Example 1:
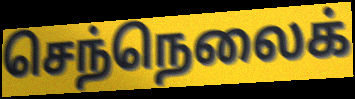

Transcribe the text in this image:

செந்நெலைக்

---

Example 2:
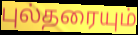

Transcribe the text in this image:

புல்தரையும்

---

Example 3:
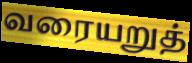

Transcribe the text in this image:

வரையறுத்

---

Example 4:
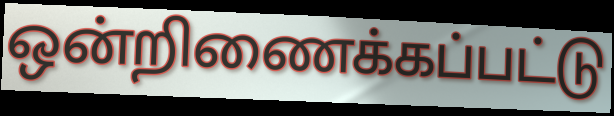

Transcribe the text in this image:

ஒன்றிணைக்கப்பட்டு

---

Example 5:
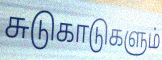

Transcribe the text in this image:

சுடுகாடுகளும்